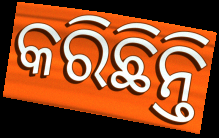
କରିଛିନ୍ତି